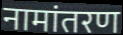
नामांतरण